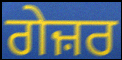
ਗੇਜ਼ਰ